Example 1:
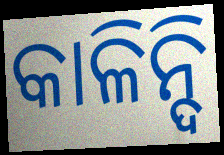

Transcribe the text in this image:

କାଳିନ୍ଦି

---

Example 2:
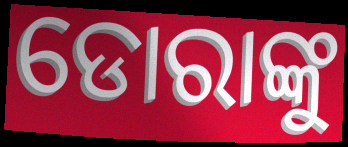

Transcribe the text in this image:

ଡୋରାଙ୍କୁ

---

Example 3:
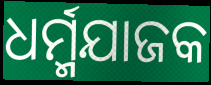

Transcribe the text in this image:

ଧର୍ମ୍ମଯାଜକ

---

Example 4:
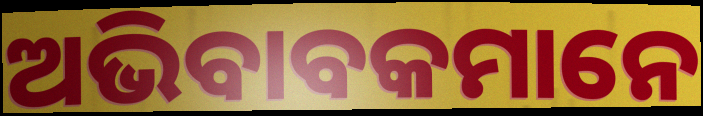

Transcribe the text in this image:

ଅଭିବାବକମାନେ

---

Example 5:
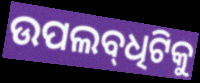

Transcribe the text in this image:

ଉପଲବ୍‌ଧିଟିକୁ